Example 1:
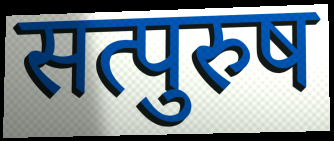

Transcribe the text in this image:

सत्पुरुष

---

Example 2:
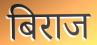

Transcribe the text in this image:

बिराज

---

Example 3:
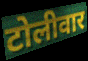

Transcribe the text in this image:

टोलीवार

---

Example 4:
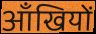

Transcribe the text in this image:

आँखियों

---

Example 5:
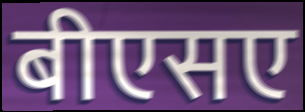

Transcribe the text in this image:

बीएसए